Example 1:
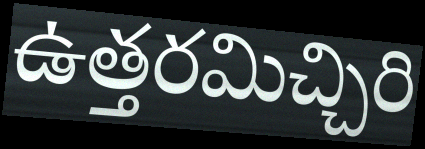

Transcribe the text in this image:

ఉత్తరమిచ్చిరి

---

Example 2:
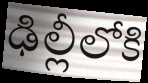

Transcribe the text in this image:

ఢిల్లీలోకి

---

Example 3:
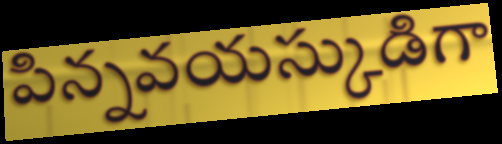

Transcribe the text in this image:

పిన్నవయస్కుడిగా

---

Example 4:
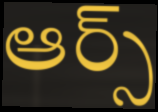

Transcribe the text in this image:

ఆర్స్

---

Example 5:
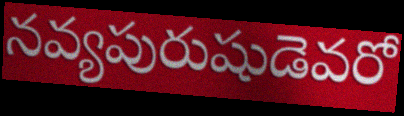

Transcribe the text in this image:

నవ్యపురుషుడెవరో